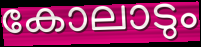
കോലാടും